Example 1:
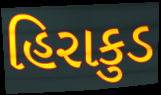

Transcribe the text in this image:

હિરાકુડ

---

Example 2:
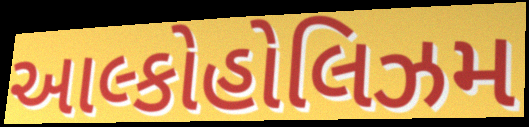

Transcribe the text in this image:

આલ્કોહોલિઝમ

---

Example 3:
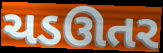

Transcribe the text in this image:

ચડઊતર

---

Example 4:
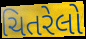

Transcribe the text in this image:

ચિતરેલો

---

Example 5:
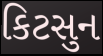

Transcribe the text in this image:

કિટસુન